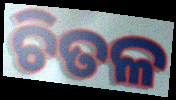
ଚିତଳ